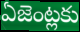
ఏజెంట్లకు